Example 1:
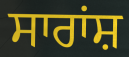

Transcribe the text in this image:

ਸਾਰਾਂਸ਼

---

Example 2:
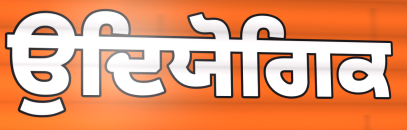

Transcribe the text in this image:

ਉਦਿਯੋਗਿਕ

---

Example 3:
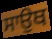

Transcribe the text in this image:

ਸਾਉਥ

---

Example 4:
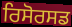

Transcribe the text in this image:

ਰਿਸੋਰਸਡ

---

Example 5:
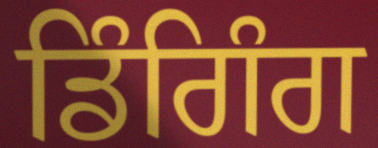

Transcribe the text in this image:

ਡਿੰਗਿੰਗ